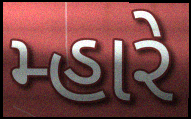
મ્હારે